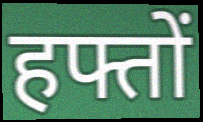
हफ्तों